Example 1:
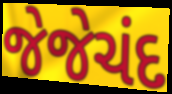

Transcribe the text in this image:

જેજેચંદ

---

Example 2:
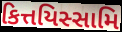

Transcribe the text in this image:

કિત્તયિસ્સામિ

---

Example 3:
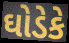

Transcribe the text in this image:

ઘોડેકે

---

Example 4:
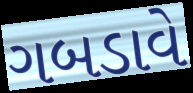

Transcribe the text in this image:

ગબડાવે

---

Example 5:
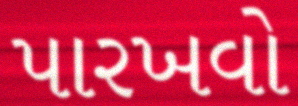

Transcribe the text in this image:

પારખવો